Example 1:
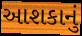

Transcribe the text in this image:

આશકાનું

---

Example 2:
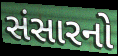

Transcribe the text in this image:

સંસારનો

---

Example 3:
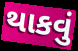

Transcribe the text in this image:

થાકવું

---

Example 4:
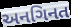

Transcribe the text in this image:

અનગિનત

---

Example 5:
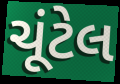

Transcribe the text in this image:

ચૂંટેલ